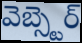
వెబ్స్టెర్